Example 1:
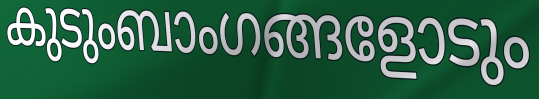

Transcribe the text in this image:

കുടുംബാംഗങ്ങളോടും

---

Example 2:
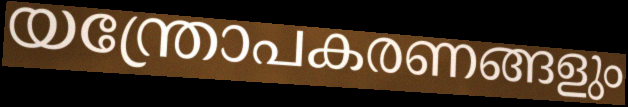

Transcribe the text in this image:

യന്ത്രോപകരണങ്ങളും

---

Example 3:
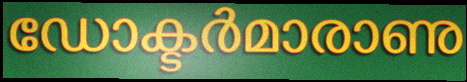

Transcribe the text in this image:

ഡോക്ടർമാരാണു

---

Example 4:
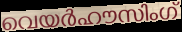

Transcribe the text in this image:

വെയർഹൗസിംഗ്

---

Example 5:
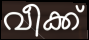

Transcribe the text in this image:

വീക്ക്